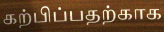
கற்பிப்பதற்காக